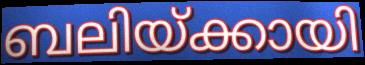
ബലിയ്ക്കായി